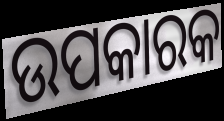
ଉପକାରକ